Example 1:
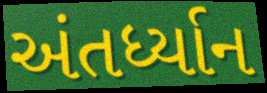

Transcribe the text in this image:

અંતર્ધ્યાન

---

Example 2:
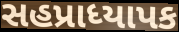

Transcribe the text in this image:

સહપ્રાધ્યાપક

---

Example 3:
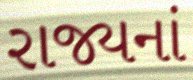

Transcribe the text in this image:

રાજ્યનાં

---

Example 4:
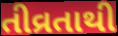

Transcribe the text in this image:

તીવ્રતાથી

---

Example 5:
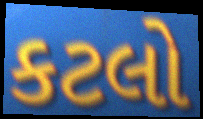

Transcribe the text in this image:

કટલો